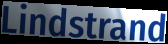
Lindstrand